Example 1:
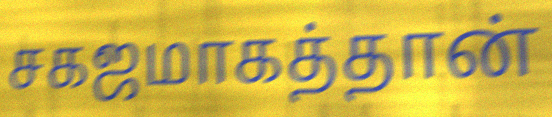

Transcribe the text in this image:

சகஜமாகத்தான்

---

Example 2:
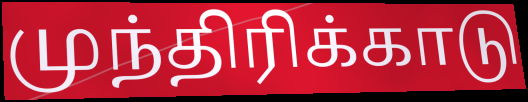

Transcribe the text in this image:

முந்திரிக்காடு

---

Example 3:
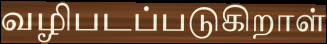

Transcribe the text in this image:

வழிபடப்படுகிறாள்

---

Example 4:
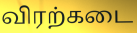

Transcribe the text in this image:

விரற்கடை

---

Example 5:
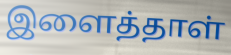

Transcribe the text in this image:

இளைத்தாள்